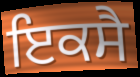
ਇਕਸੈ